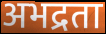
अभद्रता